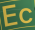
Ec